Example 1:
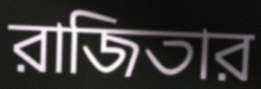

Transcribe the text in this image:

রাজিতার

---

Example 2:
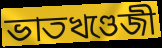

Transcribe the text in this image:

ভাতখণ্ডেজী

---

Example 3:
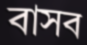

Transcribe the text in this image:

বাসব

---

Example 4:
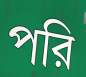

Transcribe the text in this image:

পরি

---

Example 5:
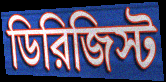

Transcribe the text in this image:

ডিরিজিস্ট